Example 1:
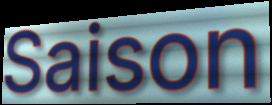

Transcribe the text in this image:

Saison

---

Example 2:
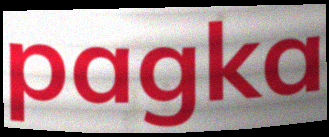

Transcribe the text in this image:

pagka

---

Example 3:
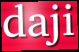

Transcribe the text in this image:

daji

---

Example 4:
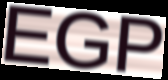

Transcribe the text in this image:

EGP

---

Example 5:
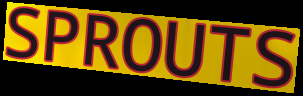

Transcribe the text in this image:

SPROUTS